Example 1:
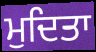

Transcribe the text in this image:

ਮੁਦਿਤਾ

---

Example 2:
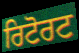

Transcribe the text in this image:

ਰਿਟੋਰਟ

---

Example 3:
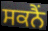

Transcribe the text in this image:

ਸਕਨੈਂ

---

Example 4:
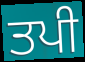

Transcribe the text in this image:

ਤਪੀ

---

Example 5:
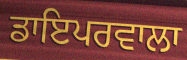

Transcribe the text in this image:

ਡਾਇਪਰਵਾਲਾ